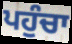
ਪਹੁੰਚਾ